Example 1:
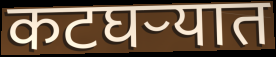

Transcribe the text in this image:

कटघऱ्यात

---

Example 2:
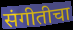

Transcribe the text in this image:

संगीतीचा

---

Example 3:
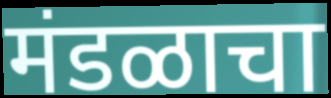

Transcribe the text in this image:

मंडळाचा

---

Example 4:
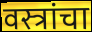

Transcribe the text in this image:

वस्त्रांचा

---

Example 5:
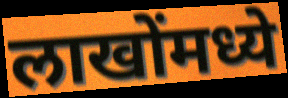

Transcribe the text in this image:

लाखोंमध्ये